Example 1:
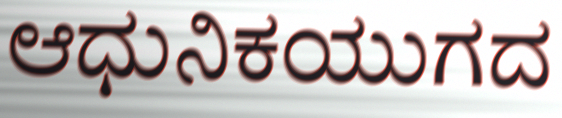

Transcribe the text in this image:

ಆಧುನಿಕಯುಗದ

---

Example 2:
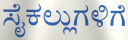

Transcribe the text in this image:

ಸೈಕಲ್ಲುಗಳಿಗೆ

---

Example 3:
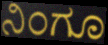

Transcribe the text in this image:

ನಿಂಗೂ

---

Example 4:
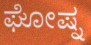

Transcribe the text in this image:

ಘೋಷ್ನ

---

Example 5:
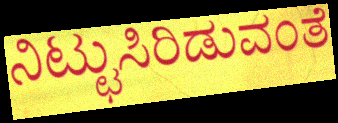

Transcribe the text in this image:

ನಿಟ್ಟುಸಿರಿಡುವಂತೆ